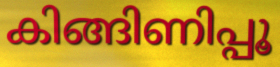
കിങ്ങിണിപ്പൂ